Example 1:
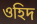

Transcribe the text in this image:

ওহিদ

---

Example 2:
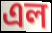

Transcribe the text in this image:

এল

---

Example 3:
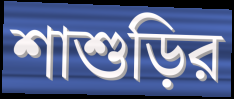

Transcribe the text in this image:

শাশুড়ির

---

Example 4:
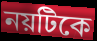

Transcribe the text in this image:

নয়টিকে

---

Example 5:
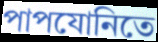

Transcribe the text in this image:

পাপযোনিতে